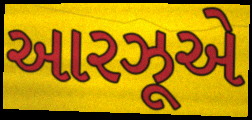
આરઝૂએ